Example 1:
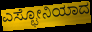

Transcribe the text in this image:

ಎಸ್ಟೋನಿಯಾದ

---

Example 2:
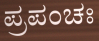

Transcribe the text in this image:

ಪ್ರಪಂಚಃ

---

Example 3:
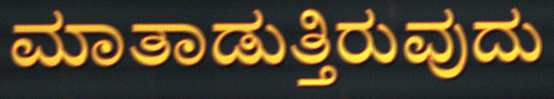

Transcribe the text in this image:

ಮಾತಾಡುತ್ತಿರುವುದು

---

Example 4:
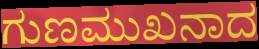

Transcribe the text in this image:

ಗುಣಮುಖನಾದ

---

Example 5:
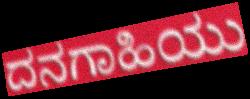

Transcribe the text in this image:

ದನಗಾಹಿಯು